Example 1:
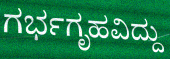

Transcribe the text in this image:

ಗರ್ಭಗೃಹವಿದ್ದು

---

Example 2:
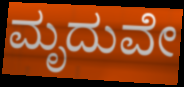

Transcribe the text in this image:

ಮೃದುವೇ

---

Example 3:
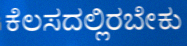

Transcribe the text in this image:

ಕೆಲಸದಲ್ಲಿರಬೇಕು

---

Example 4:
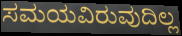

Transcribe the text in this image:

ಸಮಯವಿರುವುದಿಲ್ಲ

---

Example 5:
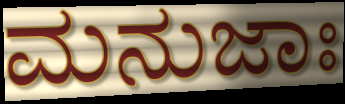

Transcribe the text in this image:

ಮನುಜಾಃ